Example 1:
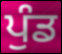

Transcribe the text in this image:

ਪੁੰਡ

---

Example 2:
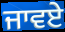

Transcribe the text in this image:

ਜਾਵਏ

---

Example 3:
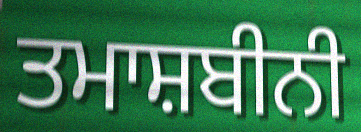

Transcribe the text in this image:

ਤਮਾਸ਼ਬੀਨੀ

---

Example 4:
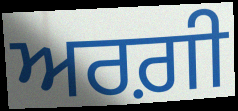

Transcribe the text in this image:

ਅਰਗ਼ੀ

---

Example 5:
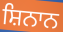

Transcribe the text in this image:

ਸ਼ਿਨਾਨ